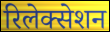
रिलेक्सेशन